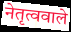
नेतृत्ववाले